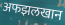
अफझलखान